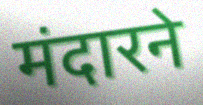
मंदारने